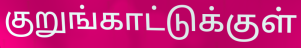
குறுங்காட்டுக்குள்